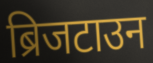
ब्रिजटाउन